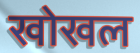
खोखल